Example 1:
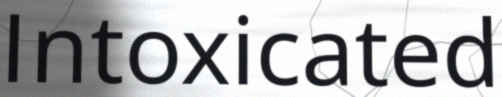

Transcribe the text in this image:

Intoxicated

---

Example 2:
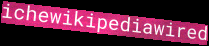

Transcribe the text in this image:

ichewikipediawired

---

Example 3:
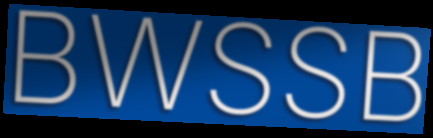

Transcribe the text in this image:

BWSSB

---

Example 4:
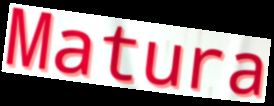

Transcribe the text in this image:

Matura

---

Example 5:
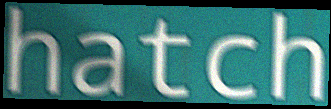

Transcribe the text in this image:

hatch